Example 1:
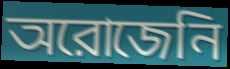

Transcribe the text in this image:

অরোজেনি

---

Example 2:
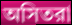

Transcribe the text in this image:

অসিতরা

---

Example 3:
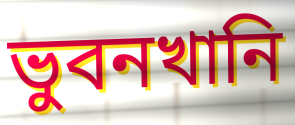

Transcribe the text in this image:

ভুবনখানি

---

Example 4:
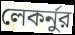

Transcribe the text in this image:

লেকর্নুর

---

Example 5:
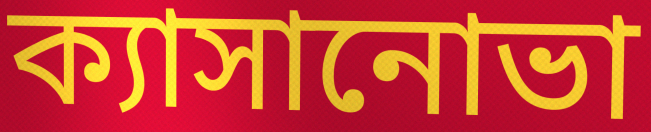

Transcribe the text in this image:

ক্যাসানোভা